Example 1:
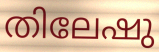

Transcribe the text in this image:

തിലേഷു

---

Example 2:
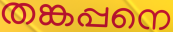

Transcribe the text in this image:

തങ്കപ്പനെ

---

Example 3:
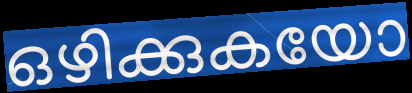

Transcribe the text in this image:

ഒഴിക്കുകയോ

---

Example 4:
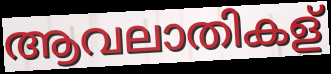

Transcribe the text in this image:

ആവലാതികള്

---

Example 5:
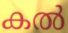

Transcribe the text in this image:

കൽ